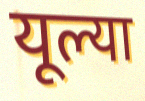
यूल्या